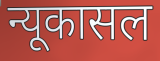
न्यूकासल